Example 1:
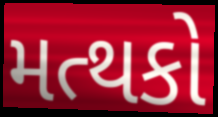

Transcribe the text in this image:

મત્થકો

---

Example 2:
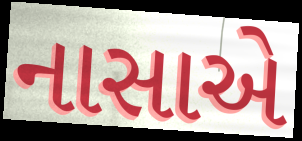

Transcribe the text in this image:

નાસાએ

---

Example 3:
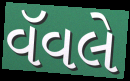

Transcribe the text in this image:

વૅવલે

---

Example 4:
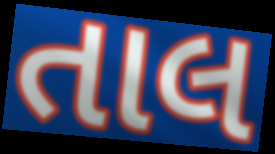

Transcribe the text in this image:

તાલ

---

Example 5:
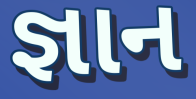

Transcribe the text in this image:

જ્ઞાન